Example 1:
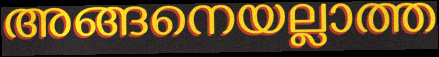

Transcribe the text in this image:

അങ്ങനെയല്ലാത്ത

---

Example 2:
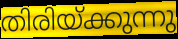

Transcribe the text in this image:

തിരിയ്ക്കുന്നു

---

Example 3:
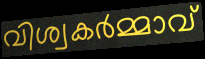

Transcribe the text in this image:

വിശ്വകർമ്മാവ്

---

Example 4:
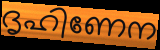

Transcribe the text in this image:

ദൃഹിണേന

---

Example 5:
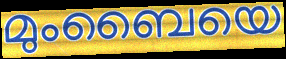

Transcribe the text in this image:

മുംബൈയെ